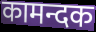
कामन्दक